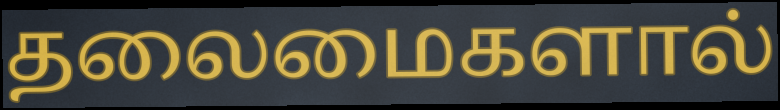
தலைமைகளால்